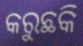
କରୁଛକି